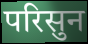
परिसुन